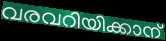
വരവറിയിക്കാന്